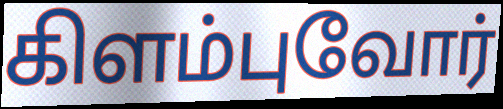
கிளம்புவோர்